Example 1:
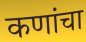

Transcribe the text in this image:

कणांचा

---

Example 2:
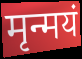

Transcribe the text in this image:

मृन्मयं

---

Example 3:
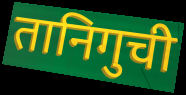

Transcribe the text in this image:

तानिगुची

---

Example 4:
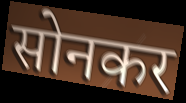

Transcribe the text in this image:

सोनकर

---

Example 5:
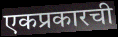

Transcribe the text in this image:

एकप्रकारची